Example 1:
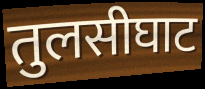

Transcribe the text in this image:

तुलसीघाट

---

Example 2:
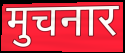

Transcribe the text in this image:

मुचनार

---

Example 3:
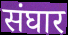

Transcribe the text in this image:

संघार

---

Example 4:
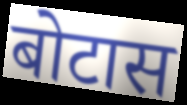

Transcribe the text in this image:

बोटास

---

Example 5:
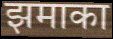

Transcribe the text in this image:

झमाका